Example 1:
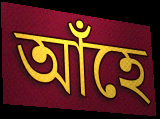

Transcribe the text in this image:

আঁহে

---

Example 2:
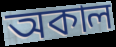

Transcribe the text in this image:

অকাল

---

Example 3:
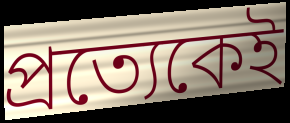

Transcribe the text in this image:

প্ৰত্যেকেই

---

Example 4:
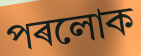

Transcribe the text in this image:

পৰলোক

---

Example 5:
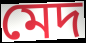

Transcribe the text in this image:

মেদ